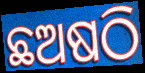
ଛଅଷଠି